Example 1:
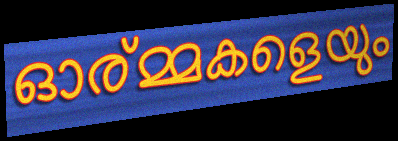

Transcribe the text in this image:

ഓര്മ്മകളെയും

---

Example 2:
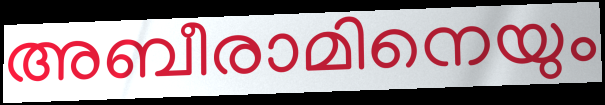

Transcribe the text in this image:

അബീരാമിനെയും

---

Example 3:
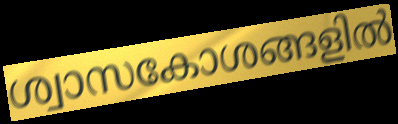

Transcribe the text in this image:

ശ്വാസകോശങ്ങളിൽ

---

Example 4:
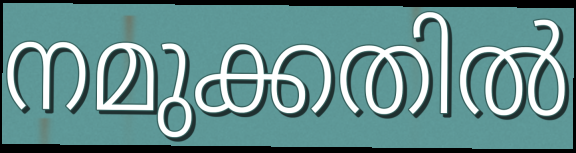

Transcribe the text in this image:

നമുക്കതിൽ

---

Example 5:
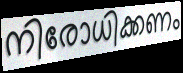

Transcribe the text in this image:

നിരോധിക്കണം